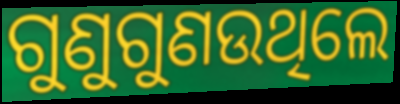
ଗୁଣୁଗୁଣଉଥିଲେ